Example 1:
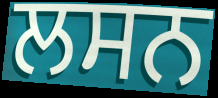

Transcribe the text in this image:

ਲਸਨ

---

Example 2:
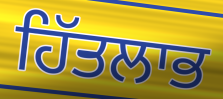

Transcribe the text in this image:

ਹਿੱਤਲਾਭ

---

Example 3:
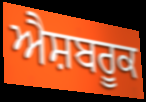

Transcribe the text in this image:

ਐਸ਼ਬਰੂਕ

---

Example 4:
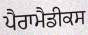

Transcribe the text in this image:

ਪੈਰਾਮੈਡੀਕਸ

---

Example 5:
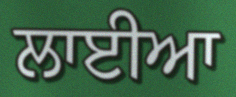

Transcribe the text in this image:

ਲਾਈਆ